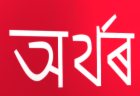
অৰ্থৰ